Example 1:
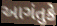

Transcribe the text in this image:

આગંતુકે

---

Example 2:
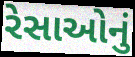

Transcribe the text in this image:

રેસાઓનું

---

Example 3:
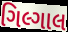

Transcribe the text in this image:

ગિલ્ગાલ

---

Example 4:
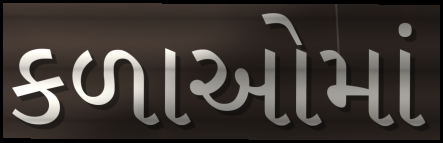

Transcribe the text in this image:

કળાઓમાં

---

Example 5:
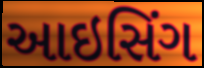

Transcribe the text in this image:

આઇસિંગ